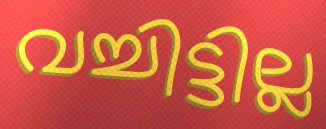
വച്ചിട്ടില്ല